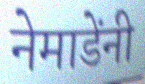
नेमाडेंनी